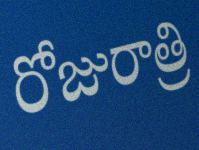
రోజురాత్రి